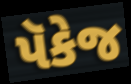
પૅકેજ